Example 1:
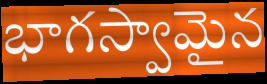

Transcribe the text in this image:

భాగస్వామైన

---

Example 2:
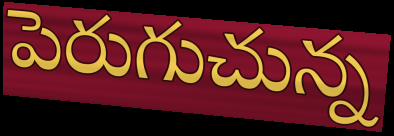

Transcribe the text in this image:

పెరుగుచున్న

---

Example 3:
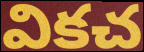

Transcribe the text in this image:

వికచ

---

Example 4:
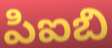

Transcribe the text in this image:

పిఐబి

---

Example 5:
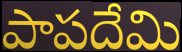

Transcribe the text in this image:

పాపదేమి